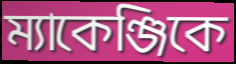
ম্যাকেঞ্জিকে